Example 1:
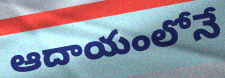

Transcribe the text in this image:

ఆదాయంలోనే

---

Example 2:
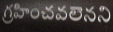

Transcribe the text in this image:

గ్రహించవలెనని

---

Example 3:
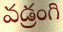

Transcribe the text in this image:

వడ్రంగి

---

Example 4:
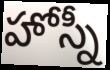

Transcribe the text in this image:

హోస్నీ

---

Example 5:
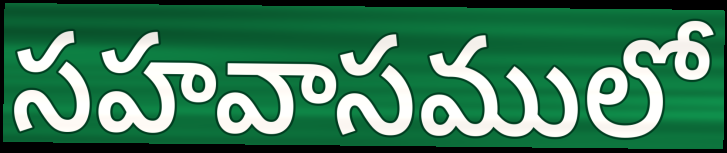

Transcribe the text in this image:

సహవాసములో